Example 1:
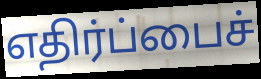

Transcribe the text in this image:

எதிர்ப்பைச்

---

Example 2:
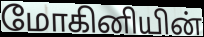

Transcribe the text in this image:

மோகினியின்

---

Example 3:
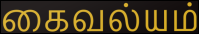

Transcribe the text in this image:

கைவல்யம்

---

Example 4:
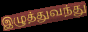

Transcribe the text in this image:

இழுத்துவந்து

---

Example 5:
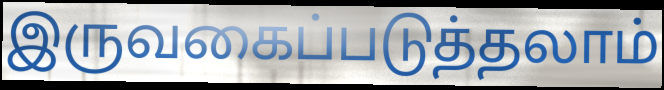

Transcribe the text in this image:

இருவகைப்படுத்தலாம்